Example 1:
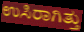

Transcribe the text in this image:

ಉಸಿರಾಗಿತ್ತು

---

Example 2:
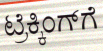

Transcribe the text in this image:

ಟ್ರೆಕ್ಕಿಂಗ್‌ಗೆ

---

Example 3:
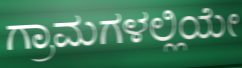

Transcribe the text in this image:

ಗ್ರಾಮಗಳಲ್ಲಿಯೇ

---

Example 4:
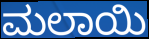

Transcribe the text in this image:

ಮಲಾಯಿ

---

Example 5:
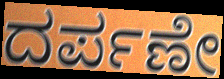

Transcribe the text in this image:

ದರ್ಪಣೇ